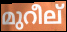
മുറീല്